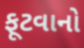
ફૂટવાનો